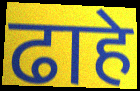
ढाहे